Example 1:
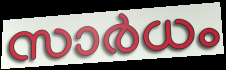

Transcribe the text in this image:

സാർധം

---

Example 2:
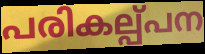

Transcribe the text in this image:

പരികല്പ്പന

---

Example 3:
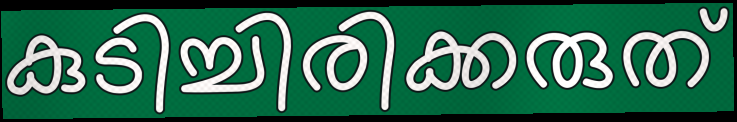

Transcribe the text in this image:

കുടിച്ചിരിക്കരുത്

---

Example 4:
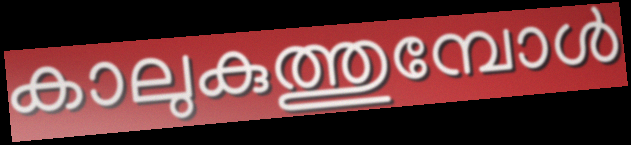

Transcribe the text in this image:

കാലുകുത്തുമ്പോൾ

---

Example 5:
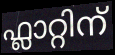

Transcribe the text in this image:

ഫ്ലാറ്റിന്